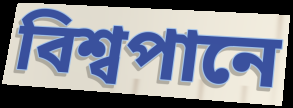
বিশ্বপানে